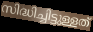
സിദ്ധിച്ചിട്ടുള്ളത്